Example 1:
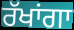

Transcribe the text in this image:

ਰੱਖਾਂਗਾ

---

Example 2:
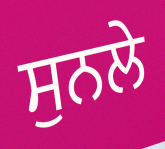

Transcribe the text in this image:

ਸੁਨਲੇ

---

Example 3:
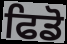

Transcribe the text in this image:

ਫਿਡੋ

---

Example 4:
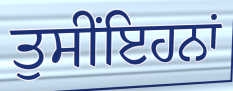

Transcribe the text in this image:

ਤੁਸੀਂਇਹਨਾਂ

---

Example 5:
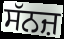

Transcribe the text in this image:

ਸੱਨਜ਼